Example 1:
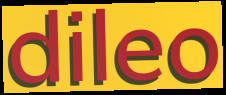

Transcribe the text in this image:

dileo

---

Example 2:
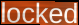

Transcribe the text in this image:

locked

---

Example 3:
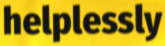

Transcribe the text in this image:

helplessly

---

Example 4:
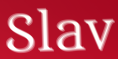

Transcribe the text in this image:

Slav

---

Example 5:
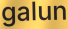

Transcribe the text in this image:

galun